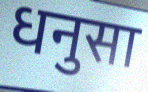
धनुसा